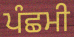
ਪੰਛਮੀ